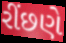
રીંછણે